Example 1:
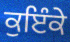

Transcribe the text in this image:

ਕੁਇੰਕੇ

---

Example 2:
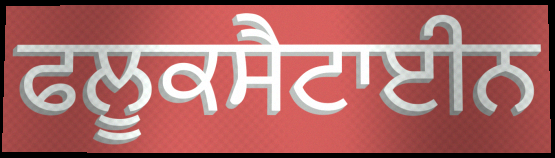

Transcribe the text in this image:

ਫਲੂਕਸੈਟਾਈਨ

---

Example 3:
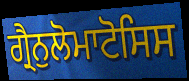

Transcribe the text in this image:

ਗ੍ਰੈਨੁਲੋਮਾਟੋਸਿਸ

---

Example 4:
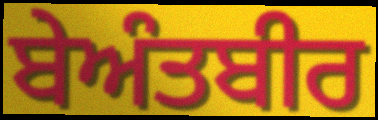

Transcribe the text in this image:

ਬੇਅੰਤਬੀਰ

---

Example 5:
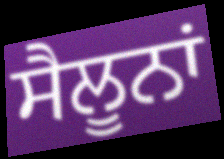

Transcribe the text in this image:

ਸੈਲੂਨਾਂ